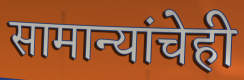
सामान्यांचेही